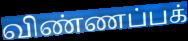
விண்ணப்பக்